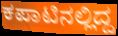
ಕಪಾಟಿನಲ್ಲಿದ್ದ